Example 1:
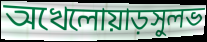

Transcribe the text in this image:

অখেলোয়াড়সুলভ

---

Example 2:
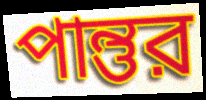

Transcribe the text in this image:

পান্তুর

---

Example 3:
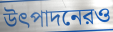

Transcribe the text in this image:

উৎপাদনেরও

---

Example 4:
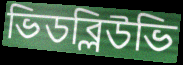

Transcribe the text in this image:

ভিডব্লিউভি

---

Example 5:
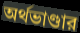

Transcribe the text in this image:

অর্থভাণ্ডার